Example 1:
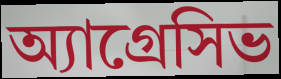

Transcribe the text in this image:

অ্যাগ্রেসিভ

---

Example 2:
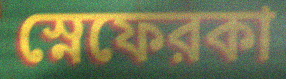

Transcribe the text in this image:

স্নেফেরকা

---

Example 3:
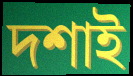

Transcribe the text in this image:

দশাই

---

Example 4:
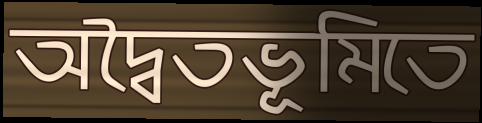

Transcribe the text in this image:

অদ্বৈতভূমিতে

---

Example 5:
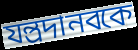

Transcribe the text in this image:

যন্ত্রদানবকে